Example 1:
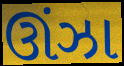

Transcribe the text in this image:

ઊંઝા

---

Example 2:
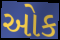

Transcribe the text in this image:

ઓક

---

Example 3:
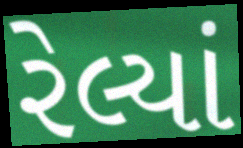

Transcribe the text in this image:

રેલ્યાં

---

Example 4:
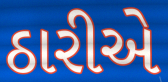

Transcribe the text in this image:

ઠારીએ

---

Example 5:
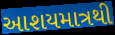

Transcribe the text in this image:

આશયમાત્રથી